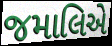
જમાલિએ